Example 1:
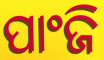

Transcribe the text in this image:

ପାଂଜି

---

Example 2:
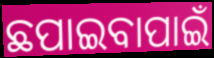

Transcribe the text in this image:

ଛପାଇବାପାଇଁ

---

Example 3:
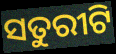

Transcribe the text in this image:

ସତୁରୀଟି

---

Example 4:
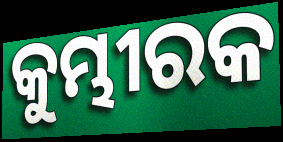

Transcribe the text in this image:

କୁମ୍ଭୀରକ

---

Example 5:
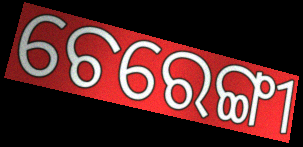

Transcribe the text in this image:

ଚେରେଙ୍ଗୀ